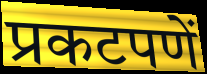
प्रकटपणें